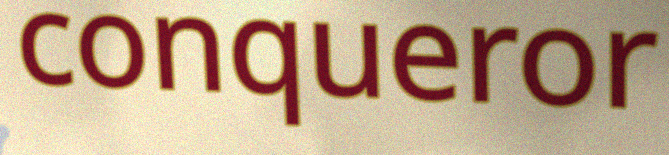
conqueror